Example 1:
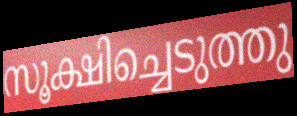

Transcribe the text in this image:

സൂക്ഷിച്ചെടുത്തു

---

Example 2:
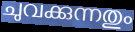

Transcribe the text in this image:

ചുവക്കുന്നതും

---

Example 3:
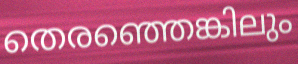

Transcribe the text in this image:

തെരഞ്ഞെങ്കിലും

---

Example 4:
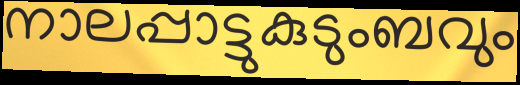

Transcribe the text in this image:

നാലപ്പാട്ടുകുടുംബവും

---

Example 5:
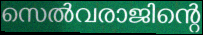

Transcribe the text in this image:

സെൽവരാജിന്റെ